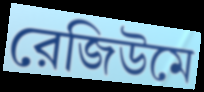
রেজিউমে